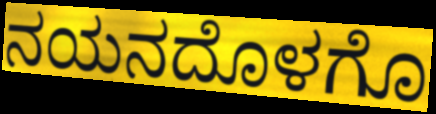
ನಯನದೊಳಗೊ